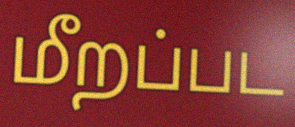
மீறப்பட